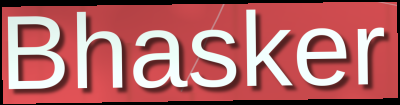
Bhasker